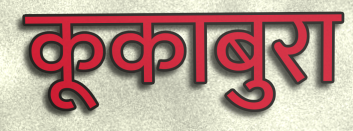
कूकाबुरा